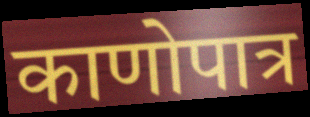
काणोपात्र